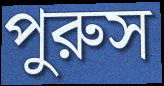
পুরুস